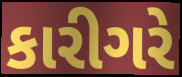
કારીગરે